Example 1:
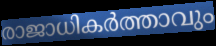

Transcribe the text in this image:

രാജാധികർത്താവും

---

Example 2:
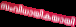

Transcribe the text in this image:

സംവിധായികയായി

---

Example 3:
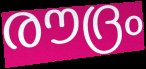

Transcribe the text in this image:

രൗദ്രം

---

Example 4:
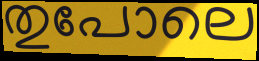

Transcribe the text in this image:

തുപോലെ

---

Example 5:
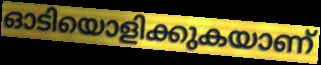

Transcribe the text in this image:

ഓടിയൊളിക്കുകയാണ്